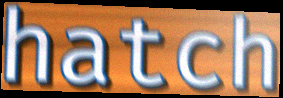
hatch